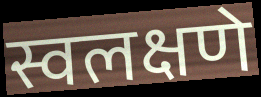
स्वलक्षणे